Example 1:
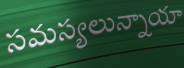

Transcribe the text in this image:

సమస్యలున్నాయా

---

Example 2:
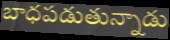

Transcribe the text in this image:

బాధపడుతున్నాడు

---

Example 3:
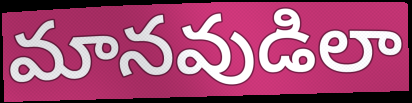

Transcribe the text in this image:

మానవుడిలా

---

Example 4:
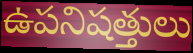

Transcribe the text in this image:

ఉపనిషత్తులు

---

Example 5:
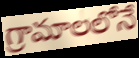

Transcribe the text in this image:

గ్రామాలలోనే